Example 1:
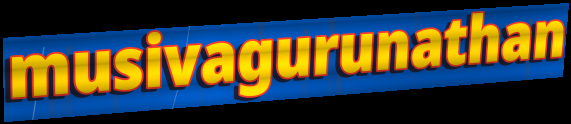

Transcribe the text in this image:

musivagurunathan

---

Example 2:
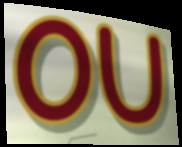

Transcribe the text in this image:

OU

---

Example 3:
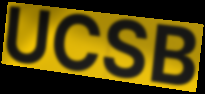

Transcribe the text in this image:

UCSB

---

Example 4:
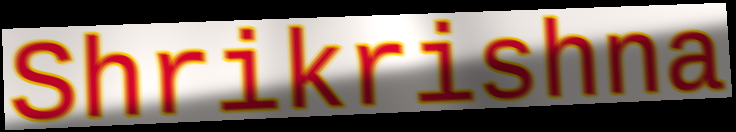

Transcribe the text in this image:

Shrikrishna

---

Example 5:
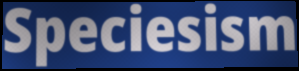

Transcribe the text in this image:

Speciesism